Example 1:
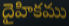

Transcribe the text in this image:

దైహికము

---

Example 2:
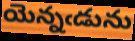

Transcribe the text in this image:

యెన్నఁడును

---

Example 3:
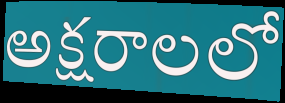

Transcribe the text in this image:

అక్షరాలలో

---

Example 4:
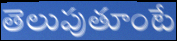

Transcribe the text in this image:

తెలుపుతూంటే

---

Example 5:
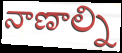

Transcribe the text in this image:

నాణాల్ని